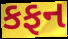
કફન